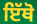
ਇੱਥੋ